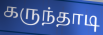
கருந்தாடி